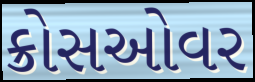
ક્રોસઓવર